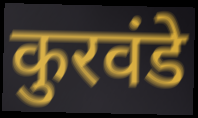
कुरवंडे